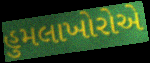
હુમલાખોરોએ